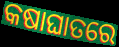
କଷାଘାତରେ